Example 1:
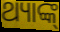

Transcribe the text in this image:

ଥ୍ୟାଙ୍କ୍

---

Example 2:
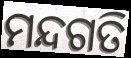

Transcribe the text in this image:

ମନ୍ଦଗତି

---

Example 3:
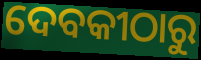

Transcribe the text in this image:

ଦେବକୀଠାରୁ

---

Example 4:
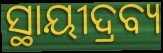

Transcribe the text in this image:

ସ୍ଥାୟୀଦ୍ରବ୍ୟ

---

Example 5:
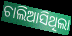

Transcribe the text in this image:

ଚାଲିଆସିଥିଲା